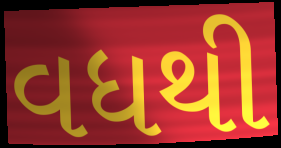
વધથી